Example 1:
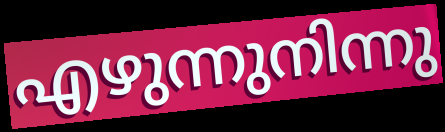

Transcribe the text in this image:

എഴുന്നുനിന്നു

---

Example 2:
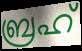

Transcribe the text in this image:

ബ്രഹ്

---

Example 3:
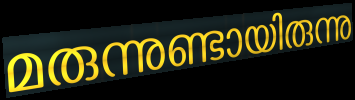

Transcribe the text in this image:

മരുന്നുണ്ടായിരുന്നു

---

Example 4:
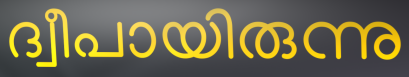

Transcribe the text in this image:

ദ്വീപായിരുന്നു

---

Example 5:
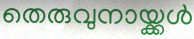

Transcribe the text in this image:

തെരുവുനായ്ക്കൾ